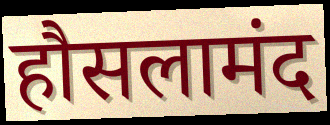
हौसलामंद